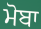
ਮੋਬਾ